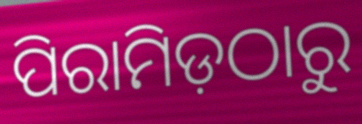
ପିରାମିଡ଼ଠାରୁ